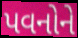
પવનોને